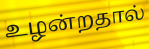
உழன்றதால்